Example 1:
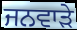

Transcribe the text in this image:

ਜਨਵਾੜੇ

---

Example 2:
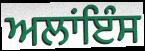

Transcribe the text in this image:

ਅਲਾਂਇੰਸ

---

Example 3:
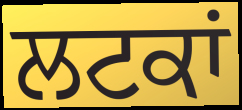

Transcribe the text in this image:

ਲਟਕਾਂ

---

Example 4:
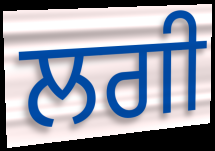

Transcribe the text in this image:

ਲਗੀ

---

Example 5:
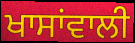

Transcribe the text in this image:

ਖਾਸਾਂਵਾਲੀ